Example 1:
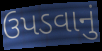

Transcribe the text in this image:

ઉપડવાનું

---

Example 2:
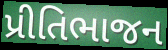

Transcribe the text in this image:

પ્રીતિભાજન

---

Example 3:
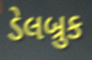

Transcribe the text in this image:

ડેલબ્રુક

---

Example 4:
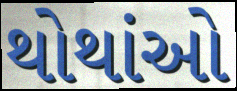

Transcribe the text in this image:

થોથાંઓ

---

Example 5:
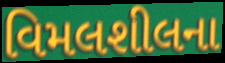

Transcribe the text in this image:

વિમલશીલના